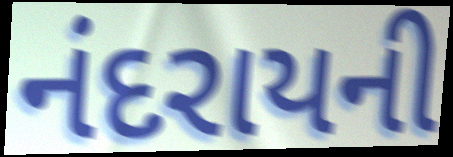
નંદરાયની